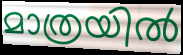
മാത്രയിൽ